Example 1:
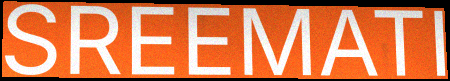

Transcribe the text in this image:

SREEMATI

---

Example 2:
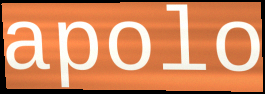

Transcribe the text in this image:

apolo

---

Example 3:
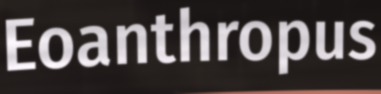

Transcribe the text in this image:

Eoanthropus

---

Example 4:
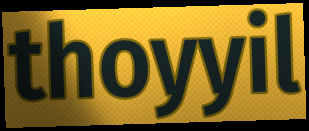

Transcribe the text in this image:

thoyyil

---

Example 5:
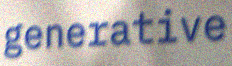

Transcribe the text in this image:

generative